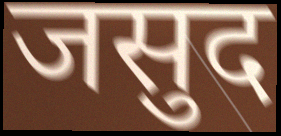
जसुद